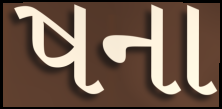
ષના